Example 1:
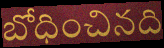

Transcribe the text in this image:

బోధించినది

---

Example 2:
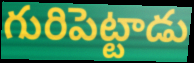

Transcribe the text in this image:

గురిపెట్టాడు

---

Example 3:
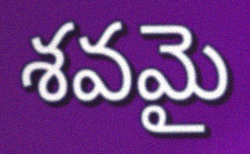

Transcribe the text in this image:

శవమై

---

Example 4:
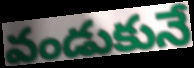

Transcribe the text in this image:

వండుకునే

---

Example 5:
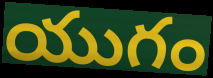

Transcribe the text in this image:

యుగం